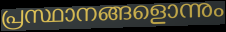
പ്രസ്ഥാനങ്ങളൊന്നും